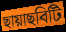
ছায়াছবিটি